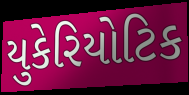
યુકેરિયોટિક